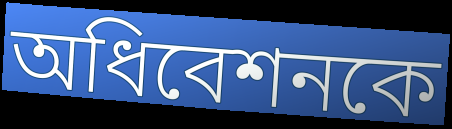
অধিবেশনকে